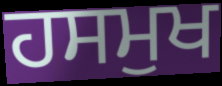
ਹਸਮੁਖ